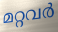
മറ്റവർ